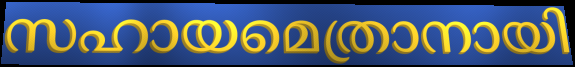
സഹായമെത്രാനായി